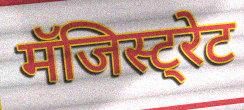
मॅजिस्ट्रेट